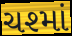
ચશ્માં